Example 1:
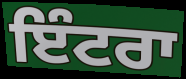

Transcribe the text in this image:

ਇੰਟਰਾ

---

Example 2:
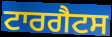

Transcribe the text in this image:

ਟਾਰਗੈਟਸ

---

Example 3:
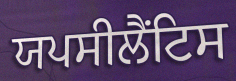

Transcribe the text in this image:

ਯਪਸੀਲੈਂਟਿਸ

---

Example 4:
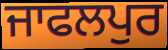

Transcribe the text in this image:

ਜਾਫਲਪੁਰ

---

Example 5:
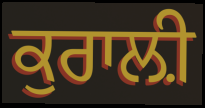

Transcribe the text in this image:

ਕੁਰਾਲ਼ੀ